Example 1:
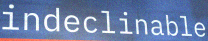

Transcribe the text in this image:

indeclinable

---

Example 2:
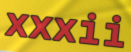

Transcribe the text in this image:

xxxii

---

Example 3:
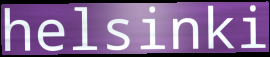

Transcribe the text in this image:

helsinki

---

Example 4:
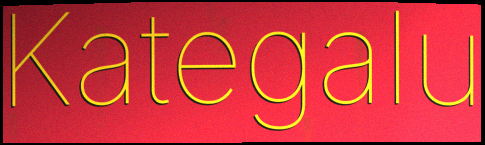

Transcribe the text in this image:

Kategalu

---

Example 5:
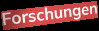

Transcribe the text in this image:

Forschungen